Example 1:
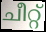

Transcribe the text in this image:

ചീറ്റ്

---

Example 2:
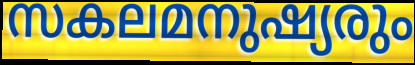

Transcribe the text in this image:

സകലമനുഷ്യരും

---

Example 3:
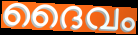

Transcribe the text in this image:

ദൈവം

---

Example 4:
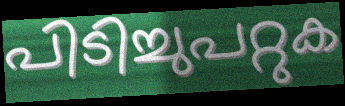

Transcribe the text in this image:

പിടിച്ചുപറ്റുക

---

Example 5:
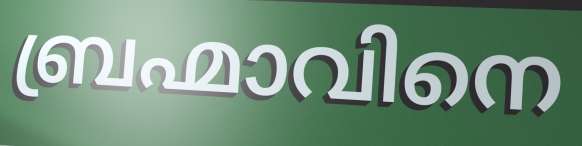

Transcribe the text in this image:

ബ്രഹ്മാവിനെ